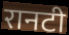
रानटी